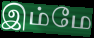
இம்மே